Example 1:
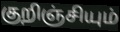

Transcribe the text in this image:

குறிஞ்சியும்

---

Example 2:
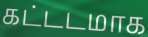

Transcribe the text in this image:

கட்டடமாக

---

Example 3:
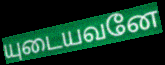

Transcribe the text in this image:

யுடையவனே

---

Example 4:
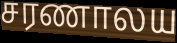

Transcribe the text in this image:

சரணாலய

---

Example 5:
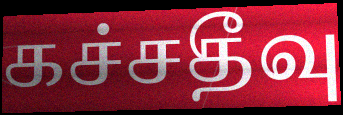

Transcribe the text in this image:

கச்சதீவு